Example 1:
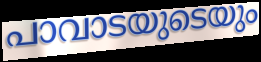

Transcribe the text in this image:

പാവാടയുടെയും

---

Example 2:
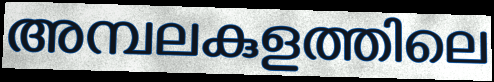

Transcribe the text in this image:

അമ്പലകുളത്തിലെ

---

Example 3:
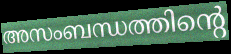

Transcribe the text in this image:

അസംബന്ധത്തിന്റെ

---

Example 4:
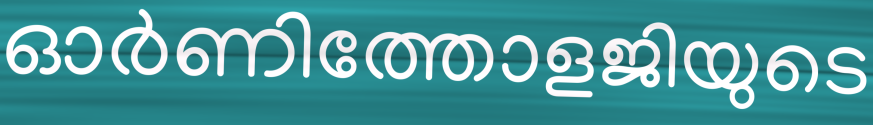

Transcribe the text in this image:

ഓർണിത്തോളജിയുടെ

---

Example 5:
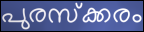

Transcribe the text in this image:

പുരസ്ക്കരം